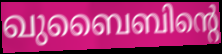
ഖുബൈബിന്റെ